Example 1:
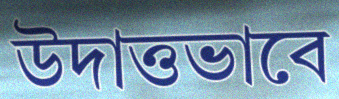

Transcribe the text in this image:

উদাত্তভাবে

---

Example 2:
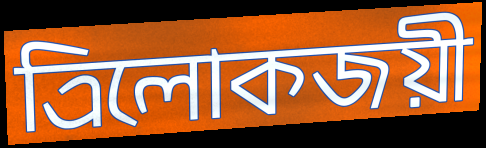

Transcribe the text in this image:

ত্রিলোকজয়ী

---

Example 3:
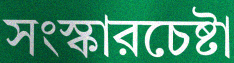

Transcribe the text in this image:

সংস্কারচেষ্টা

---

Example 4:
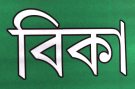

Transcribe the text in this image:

বিকা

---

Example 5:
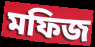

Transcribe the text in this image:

মফিজ